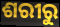
ଶରୀରୁ